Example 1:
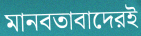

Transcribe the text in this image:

মানবতাবাদেরই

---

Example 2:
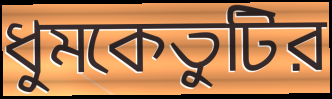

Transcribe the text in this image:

ধুমকেতুটির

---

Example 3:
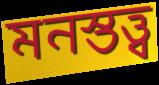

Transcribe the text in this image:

মনস্তত্ত্ব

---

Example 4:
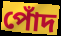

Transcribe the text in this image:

পোঁদ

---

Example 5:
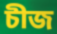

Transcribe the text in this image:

চীজ